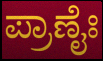
ಪ್ರಾಣೈಃ